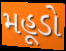
મહૂડો